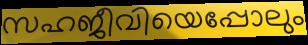
സഹജീവിയെപ്പോലും